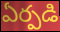
ఏర్పడి